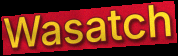
Wasatch